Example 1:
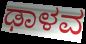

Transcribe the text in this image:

ಢಾಳವ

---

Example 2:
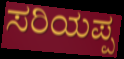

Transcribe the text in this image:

ಸರಿಯಪ್ಪ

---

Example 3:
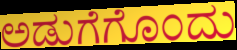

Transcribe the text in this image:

ಅಡುಗೆಗೊಂದು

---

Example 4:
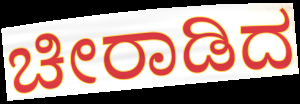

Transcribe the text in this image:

ಚೀರಾಡಿದ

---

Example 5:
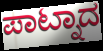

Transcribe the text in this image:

ಪಾಟ್ನಾದ